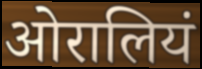
ओरालियं